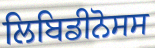
ਲਿਬਿਡੀਨੋਸਸ